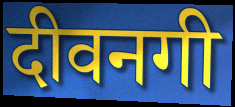
दीवनगी